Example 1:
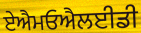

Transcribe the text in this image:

ਏਐਮਓਐਲਈਡੀ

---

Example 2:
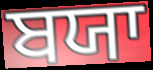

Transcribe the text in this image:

ਬਯਾ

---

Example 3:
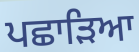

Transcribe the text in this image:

ਪਛਾੜਿਆ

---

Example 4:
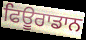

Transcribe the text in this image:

ਫਿਊਰਾਡਾਨ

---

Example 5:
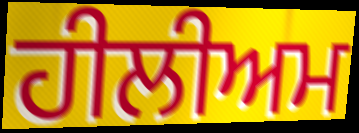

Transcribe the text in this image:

ਹੀਲੀਅਮ